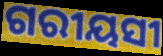
ଗରୀୟସୀ